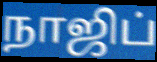
நாஜிப்